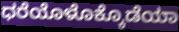
ಧರೆಯೊಳೊಕ್ಕೊಡೆಯಾ